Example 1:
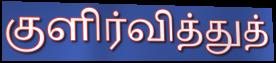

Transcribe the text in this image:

குளிர்வித்துத்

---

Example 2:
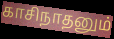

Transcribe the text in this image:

காசிநாதனும்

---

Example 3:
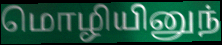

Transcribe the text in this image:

மொழியினுந்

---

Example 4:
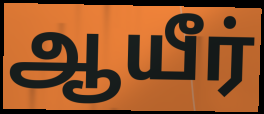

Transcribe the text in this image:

ஆயீர்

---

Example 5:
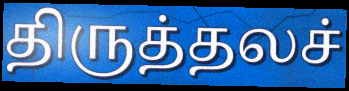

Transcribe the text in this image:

திருத்தலச்